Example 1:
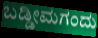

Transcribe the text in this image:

ಬಡ್ಡೀಮಗಂದು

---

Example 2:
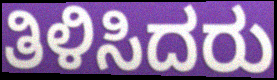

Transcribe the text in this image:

ತಿಳಿಸಿದರು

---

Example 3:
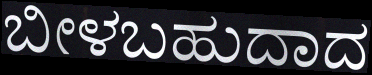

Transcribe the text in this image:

ಬೀಳಬಹುದಾದ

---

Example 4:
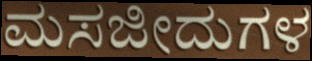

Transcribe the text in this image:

ಮಸಜೀದುಗಳ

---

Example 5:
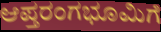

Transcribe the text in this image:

ಆಪ್ತರಂಗಭೂಮಿಗೆ